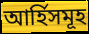
আৰ্হিসমূহ